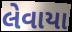
લેવાયા